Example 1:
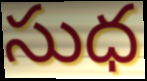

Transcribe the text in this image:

సుధ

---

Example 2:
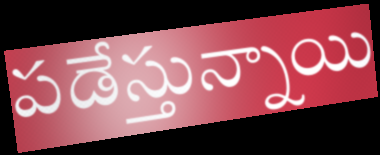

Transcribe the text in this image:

పడేస్తున్నాయి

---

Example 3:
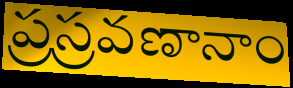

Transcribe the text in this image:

ప్రస్రవణానాం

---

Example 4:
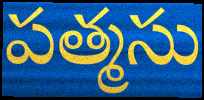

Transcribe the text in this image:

పత్మసు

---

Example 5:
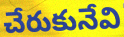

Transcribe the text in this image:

చేరుకునేవి